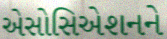
એસોસિએશનને